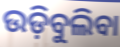
ଉଡ଼ିବୁଲିବା